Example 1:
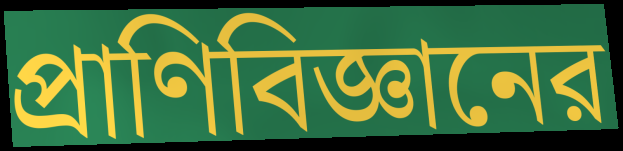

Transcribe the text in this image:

প্রাণিবিজ্ঞানের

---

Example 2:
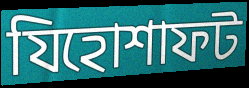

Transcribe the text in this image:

যিহোশাফট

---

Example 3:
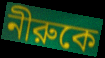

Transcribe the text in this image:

নীরুকে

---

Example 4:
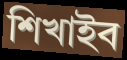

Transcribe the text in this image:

শিখাইব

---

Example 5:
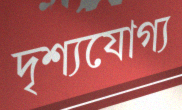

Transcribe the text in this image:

দৃশ্যযোগ্য